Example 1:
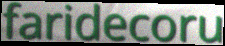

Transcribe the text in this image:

faridecoru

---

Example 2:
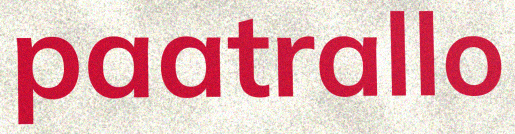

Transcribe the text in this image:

paatrallo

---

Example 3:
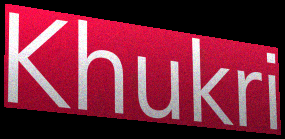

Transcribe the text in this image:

Khukri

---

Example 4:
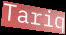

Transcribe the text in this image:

Tariq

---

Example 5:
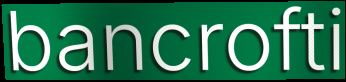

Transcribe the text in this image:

bancrofti